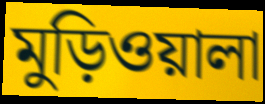
মুড়িওয়ালা